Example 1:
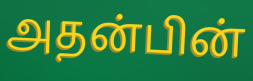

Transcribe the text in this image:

அதன்பின்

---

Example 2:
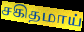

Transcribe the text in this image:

சகிதமாய்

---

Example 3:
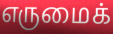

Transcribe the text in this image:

எருமைக்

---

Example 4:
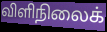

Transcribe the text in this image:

விளிநிலைக்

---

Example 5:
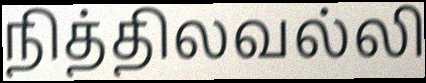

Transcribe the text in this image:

நித்திலவல்லி